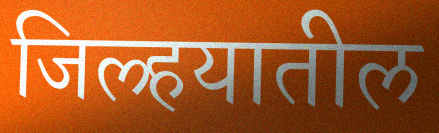
जिल्हयातील